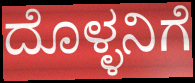
ದೊಳ್ಳನಿಗೆ